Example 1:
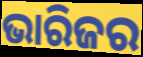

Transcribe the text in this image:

ଭାରିଜର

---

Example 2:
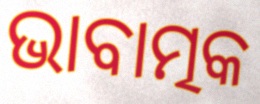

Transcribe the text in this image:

ଭାବାତ୍ମକ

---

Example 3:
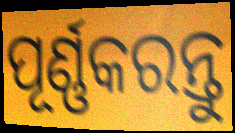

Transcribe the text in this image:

ପୂର୍ଣ୍ଣକରନ୍ତୁ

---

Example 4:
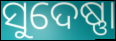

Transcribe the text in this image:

ସୁଦେଷ୍ଣା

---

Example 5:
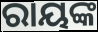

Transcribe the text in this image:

ରାୟଙ୍କ